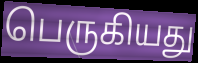
பெருகியது